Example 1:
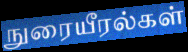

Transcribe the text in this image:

நுரையீரல்கள்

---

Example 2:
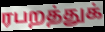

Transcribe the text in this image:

ரபறத்துக்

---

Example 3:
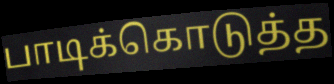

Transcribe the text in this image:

பாடிக்கொடுத்த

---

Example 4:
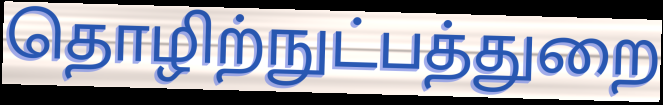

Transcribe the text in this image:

தொழிற்நுட்பத்துறை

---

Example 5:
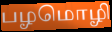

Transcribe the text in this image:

பழமொழி